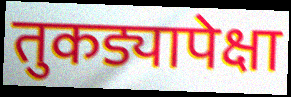
तुकड्यापेक्षा